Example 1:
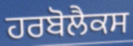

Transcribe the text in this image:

ਹਰਬੋਲੈਕਸ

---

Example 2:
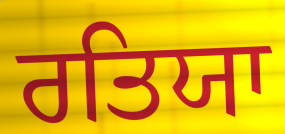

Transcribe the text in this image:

ਰਤਿਯਾ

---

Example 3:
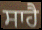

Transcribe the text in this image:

ਸਾਹੈ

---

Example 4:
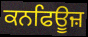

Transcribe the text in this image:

ਕਨਫਿਊਜ਼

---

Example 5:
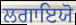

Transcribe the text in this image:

ਲਗਾਇਯੋ